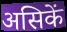
असिकें